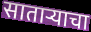
साताऱ्याचा